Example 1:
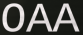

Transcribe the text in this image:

OAA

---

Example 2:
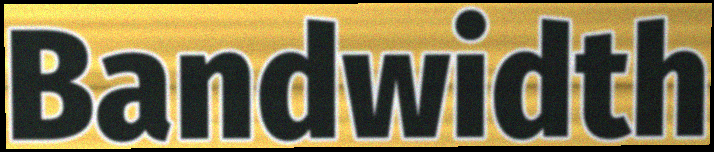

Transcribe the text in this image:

Bandwidth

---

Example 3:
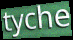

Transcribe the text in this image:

tyche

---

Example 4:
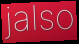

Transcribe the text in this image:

jalso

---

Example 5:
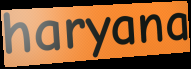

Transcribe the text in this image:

haryana